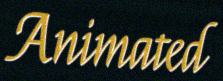
Animated